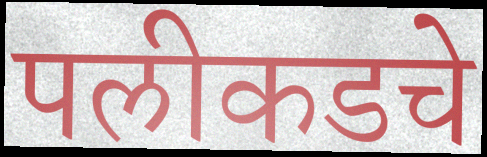
पलीकडचे